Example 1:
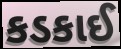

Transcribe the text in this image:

કડકાઈ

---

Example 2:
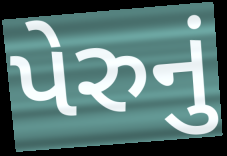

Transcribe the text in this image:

પેરુનું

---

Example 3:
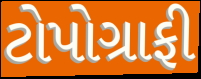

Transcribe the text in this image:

ટોપોગ્રાફી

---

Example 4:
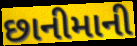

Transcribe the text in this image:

છાનીમાની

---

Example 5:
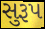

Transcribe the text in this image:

સુરૂપ